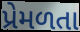
પ્રેમળતા